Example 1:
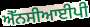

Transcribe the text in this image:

ਐੱਨਸੀਆਈਪੀ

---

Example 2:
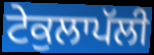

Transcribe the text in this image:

ਟੇਕੁਲਾਪੱਲੀ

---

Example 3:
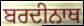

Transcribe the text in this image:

ਬਰਦੀਨਾਥ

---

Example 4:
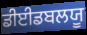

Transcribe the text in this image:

ਡੀਈਡਬਲਯੂ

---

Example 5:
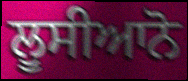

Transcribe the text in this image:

ਲੂਸੀਆਨੋ